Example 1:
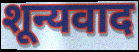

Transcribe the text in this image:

शून्यवाद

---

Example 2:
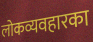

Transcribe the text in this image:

लोकव्यवहारका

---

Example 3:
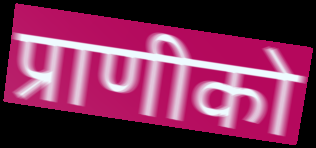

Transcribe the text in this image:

प्राणीको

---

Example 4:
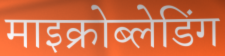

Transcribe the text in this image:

माइक्रोब्लेडिंग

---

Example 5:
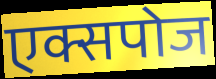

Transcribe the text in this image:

एक्सपोज